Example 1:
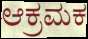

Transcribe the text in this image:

ಆಕ್ರಮಕ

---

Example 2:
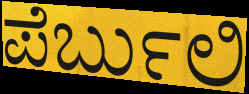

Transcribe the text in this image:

ಪೆರ್ಬುಲಿ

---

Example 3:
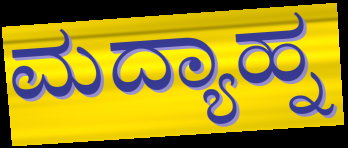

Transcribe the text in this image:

ಮದ್ಯಾಹ್ನ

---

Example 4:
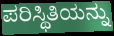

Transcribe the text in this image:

ಪರಿಸ್ಥಿತಿಯನ್ನು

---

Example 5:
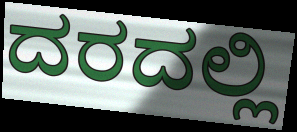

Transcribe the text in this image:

ದರದಲ್ಲಿ